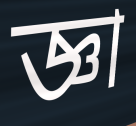
জ্ঞা